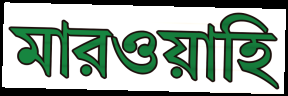
মারওয়াহি